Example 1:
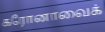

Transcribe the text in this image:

கரோனாவைக்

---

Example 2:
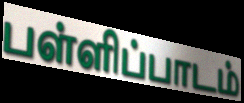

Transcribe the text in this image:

பள்ளிப்பாடம்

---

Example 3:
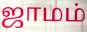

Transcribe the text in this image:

ஜாமம்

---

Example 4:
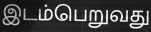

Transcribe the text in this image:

இடம்பெறுவது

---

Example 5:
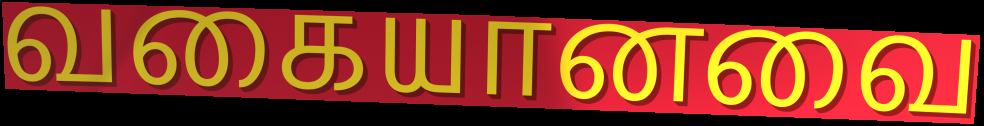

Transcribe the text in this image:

வகையானவை